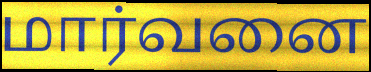
மார்வனை